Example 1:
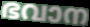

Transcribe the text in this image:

ഭവാന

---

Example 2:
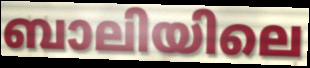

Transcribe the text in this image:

ബാലിയിലെ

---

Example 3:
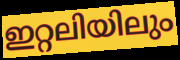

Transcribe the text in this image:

ഇറ്റലിയിലും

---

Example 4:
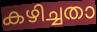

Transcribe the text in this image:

കഴിച്ചതാ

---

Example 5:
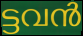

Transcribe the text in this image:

ട്ടവൻ